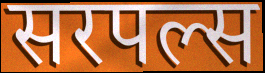
सरपल्स